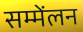
सम्मेंलन